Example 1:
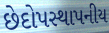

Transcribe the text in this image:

છેદોપસ્થાપનીય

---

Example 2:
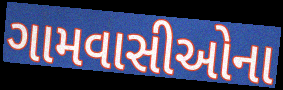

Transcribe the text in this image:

ગામવાસીઓના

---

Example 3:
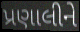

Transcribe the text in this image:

પ્રણાલીને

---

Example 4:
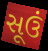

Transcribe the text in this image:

સૂઉં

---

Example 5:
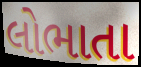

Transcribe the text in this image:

લોભાતા